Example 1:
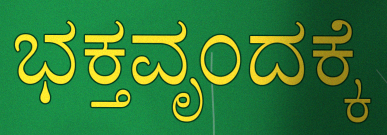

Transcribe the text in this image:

ಭಕ್ತವೃಂದಕ್ಕೆ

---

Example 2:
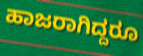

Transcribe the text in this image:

ಹಾಜರಾಗಿದ್ದರೂ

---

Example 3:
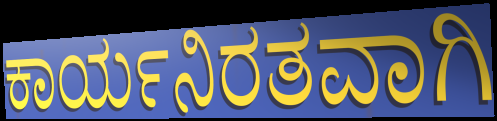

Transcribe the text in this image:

ಕಾರ್ಯನಿರತವಾಗಿ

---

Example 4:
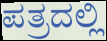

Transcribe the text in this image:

ಪತ್ರದಲ್ಲಿ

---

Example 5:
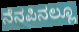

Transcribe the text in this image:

ನೆನಪಿನಲ್ಲೂ